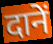
दानें